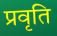
प्रवृति